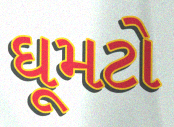
ઘૂમટો